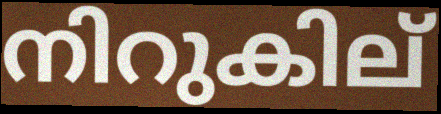
നിറുകില്